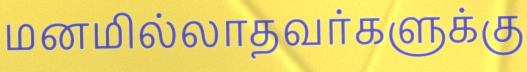
மனமில்லாதவர்களுக்கு